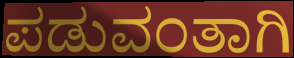
ಪಡುವಂತಾಗಿ